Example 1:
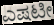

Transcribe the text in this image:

ಎಷಟೀ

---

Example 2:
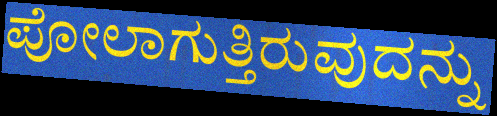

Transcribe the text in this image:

ಪೋಲಾಗುತ್ತಿರುವುದನ್ನು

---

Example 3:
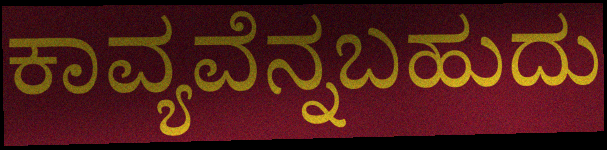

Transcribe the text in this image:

ಕಾವ್ಯವೆನ್ನಬಹುದು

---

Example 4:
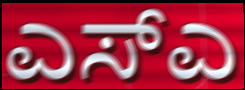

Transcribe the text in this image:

ಎಸ್ಎ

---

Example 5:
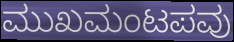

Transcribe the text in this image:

ಮುಖಮಂಟಪವು